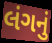
લંગનું